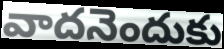
వాదనెందుకు